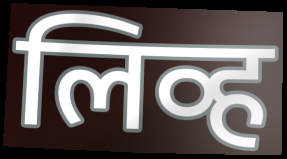
लिव्ह